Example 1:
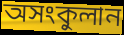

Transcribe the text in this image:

অসংকুলান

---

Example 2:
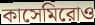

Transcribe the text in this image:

কাসেমিরোও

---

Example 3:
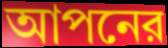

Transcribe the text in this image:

আপনের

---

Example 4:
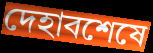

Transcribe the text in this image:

দেহাবশেষে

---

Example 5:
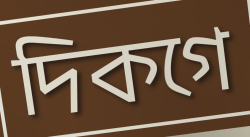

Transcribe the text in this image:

দিকগে